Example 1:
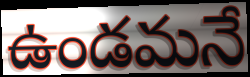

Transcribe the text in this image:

ఉండమనే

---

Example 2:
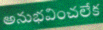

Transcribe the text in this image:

అనుభవించలేక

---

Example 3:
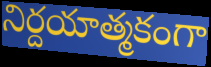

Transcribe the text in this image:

నిర్దయాత్మకంగా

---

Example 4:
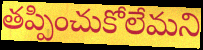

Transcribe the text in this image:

తప్పించుకోలేమని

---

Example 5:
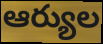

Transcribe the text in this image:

ఆర్యుల